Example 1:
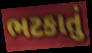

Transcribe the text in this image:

ભટકાતું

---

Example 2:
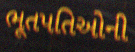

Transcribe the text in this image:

ભૂતપતિઓની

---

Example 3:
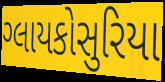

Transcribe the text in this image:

ગ્લાયકોસુરિયા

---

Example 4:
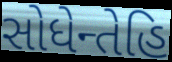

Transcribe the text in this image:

સોધેન્તેહિ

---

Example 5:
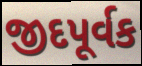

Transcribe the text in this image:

જીદપૂર્વક